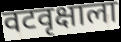
वटवृक्षाला